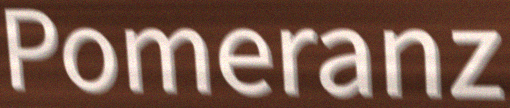
Pomeranz